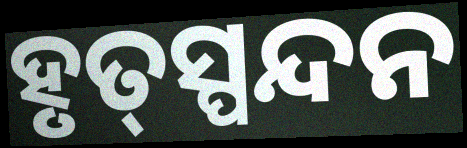
ହୃତ୍‌ସ୍ପନ୍ଦନ